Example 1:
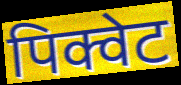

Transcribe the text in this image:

पिक्वेट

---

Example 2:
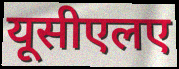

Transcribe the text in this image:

यूसीएलए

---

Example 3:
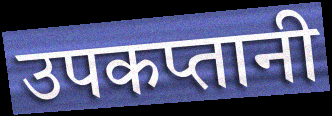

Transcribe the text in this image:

उपकप्तानी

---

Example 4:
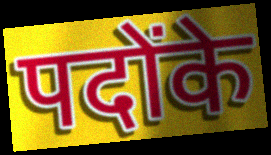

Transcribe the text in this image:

पदोंके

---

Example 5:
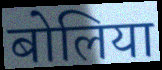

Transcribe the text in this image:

बोलिया